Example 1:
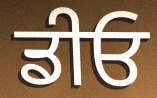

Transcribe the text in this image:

ਡੀਓ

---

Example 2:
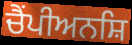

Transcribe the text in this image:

ਚੈਂਪੀਅਨਸ਼ਿ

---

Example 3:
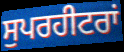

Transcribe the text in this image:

ਸੁਪਰਹੀਟਰਾਂ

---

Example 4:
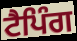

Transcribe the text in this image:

ਟੈਪਿੰਗ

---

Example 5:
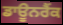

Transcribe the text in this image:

ਡਾਊਨਰੈਂਕ